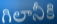
గిలానీకి